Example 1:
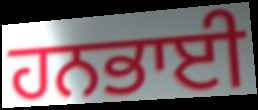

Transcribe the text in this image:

ਹਨਭਾਈ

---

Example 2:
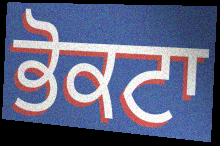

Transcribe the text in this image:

ਭੋਕਟਾ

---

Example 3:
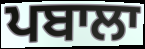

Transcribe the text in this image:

ਪਬਾਲਾ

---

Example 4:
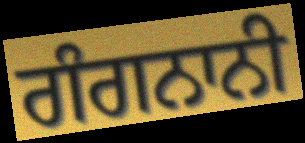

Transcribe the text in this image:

ਗੰਗਨਾਨੀ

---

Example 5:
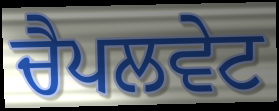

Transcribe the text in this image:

ਚੈਪਲਵੇਟ